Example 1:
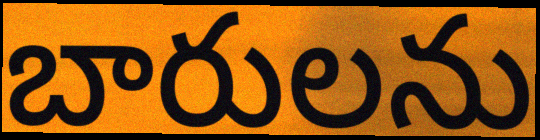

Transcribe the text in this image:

బారులను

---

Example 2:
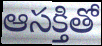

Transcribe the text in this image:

ఆసక్తితో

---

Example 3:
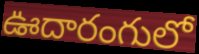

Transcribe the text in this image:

ఊదారంగులో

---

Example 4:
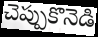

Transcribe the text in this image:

చెప్పుకొనెడి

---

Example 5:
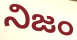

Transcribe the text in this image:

నిజం